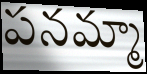
పనమ్మా